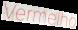
Vermelho